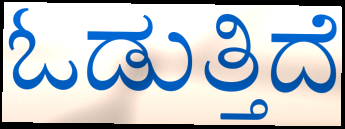
ಓಡುತ್ತಿದೆ